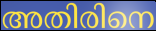
അതിരിനെ